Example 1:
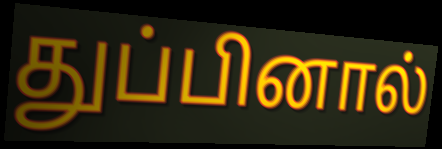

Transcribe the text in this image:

துப்பினால்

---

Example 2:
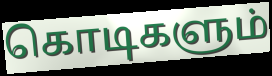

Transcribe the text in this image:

கொடிகளும்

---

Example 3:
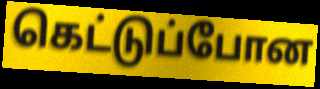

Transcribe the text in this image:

கெட்டுப்போன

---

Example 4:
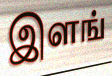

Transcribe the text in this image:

இளங்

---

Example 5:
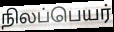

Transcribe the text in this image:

நிலப்பெயர்